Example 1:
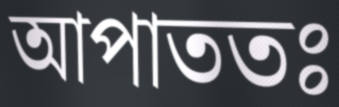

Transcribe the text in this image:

আপাততঃ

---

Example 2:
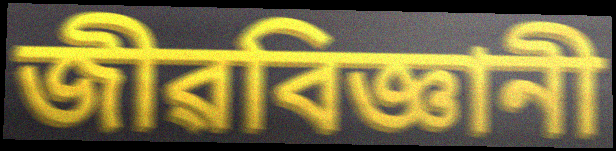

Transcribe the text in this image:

জীৱবিজ্ঞানী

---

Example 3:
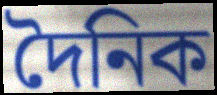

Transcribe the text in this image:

দৈনিক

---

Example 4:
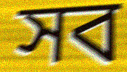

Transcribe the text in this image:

সব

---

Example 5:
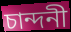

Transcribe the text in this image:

চান্দনী